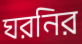
ঘরনির